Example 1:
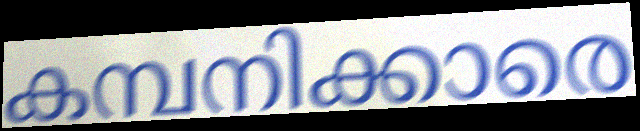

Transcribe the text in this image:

കമ്പനിക്കാരെ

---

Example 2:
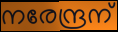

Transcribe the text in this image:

നരേന്ദ്രന്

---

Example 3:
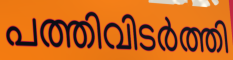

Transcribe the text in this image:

പത്തിവിടർത്തി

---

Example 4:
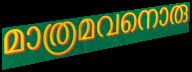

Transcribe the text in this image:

മാത്രമവനൊരു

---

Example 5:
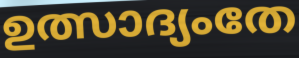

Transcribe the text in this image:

ഉത്സാദ്യംതേ